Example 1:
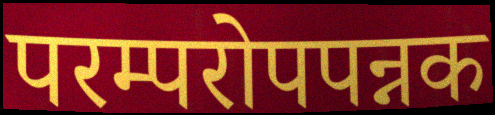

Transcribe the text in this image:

परम्परोपपन्नक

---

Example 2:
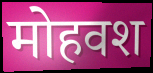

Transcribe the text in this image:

मोहवश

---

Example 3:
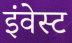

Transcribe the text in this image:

इंवेस्ट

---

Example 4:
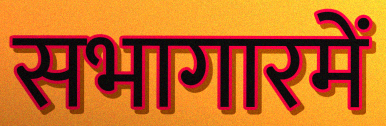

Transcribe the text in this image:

सभागारमें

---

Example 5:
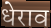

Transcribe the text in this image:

धेराव